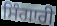
ਸਿੰਗਾਰੀ